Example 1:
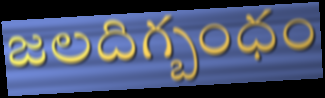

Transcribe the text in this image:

జలదిగ్బంధం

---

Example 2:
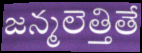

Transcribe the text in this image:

జన్మలెత్తితే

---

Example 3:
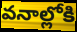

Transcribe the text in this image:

వనాల్లోకి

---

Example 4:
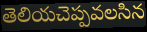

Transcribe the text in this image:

తెలియచెప్పవలసిన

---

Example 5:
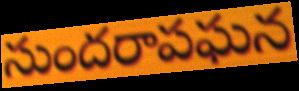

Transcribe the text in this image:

సుందరాపఘన